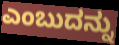
ಎಂಬುದನ್ನು